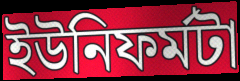
ইউনিফর্মটা